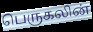
பெருகலின்